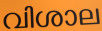
വിശാല